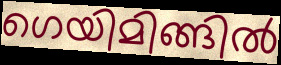
ഗെയിമിങ്ങിൽ